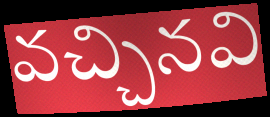
వచ్చినవి